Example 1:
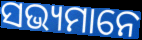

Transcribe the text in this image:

ସଭ୍ୟମାନେ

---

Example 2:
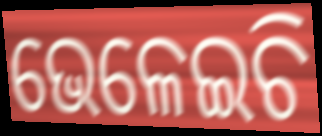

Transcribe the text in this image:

ଭେଳେଇଚି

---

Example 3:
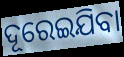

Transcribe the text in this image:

ଦୂରେଇଯିବା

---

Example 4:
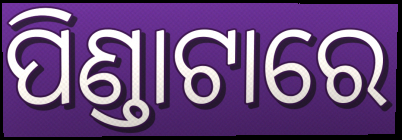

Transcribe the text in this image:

ପିଣ୍ଡାଟାରେ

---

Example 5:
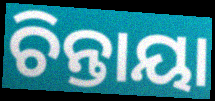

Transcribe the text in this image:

ଚିନ୍ତାୟା